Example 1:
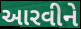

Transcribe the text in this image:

આરવીને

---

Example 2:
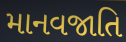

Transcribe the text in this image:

માનવજાતિ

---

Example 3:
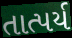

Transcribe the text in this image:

તાત્પર્ય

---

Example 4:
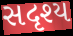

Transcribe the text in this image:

સદૃશ્ય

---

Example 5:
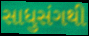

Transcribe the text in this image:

સાધુસંગથી